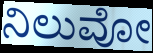
ನಿಲುವೋ